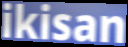
ikisan